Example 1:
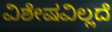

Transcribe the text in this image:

ವಿಶೇಷವಿಲ್ಲದೆ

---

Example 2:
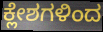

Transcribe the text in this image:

ಕ್ಲೇಶಗಳಿಂದ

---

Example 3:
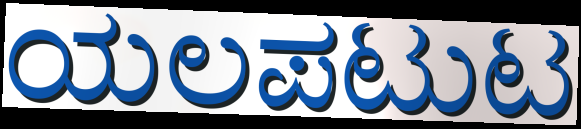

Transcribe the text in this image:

ಯಲಪಟುಟ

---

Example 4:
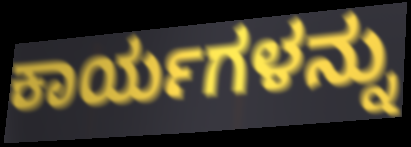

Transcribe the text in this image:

ಕಾರ್ಯಗಳನ್ನು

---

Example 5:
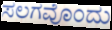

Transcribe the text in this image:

ಸಲಗವೊಂದು